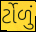
ર્ટોળું